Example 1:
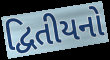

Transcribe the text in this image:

દ્વિતીયનો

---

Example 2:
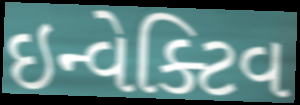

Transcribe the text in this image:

ઇન્વેક્ટિવ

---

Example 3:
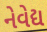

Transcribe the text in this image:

નેવેદ્ય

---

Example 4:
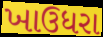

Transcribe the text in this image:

ખાઉધરા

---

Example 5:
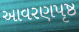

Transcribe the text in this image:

આવરણપૃષ્ઠ